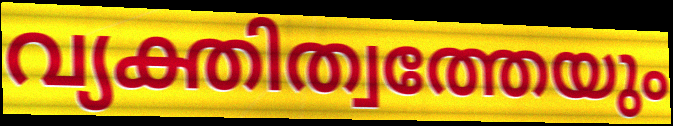
വ്യക്തിത്വത്തേയും